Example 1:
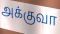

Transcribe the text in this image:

அக்குவா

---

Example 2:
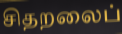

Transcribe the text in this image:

சிதறலைப்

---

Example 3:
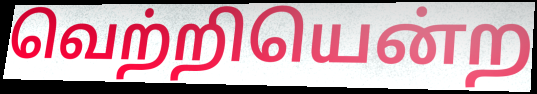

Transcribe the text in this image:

வெற்றியென்ற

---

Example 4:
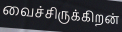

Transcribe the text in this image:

வைச்சிருக்கிறன்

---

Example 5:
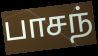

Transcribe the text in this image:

பாசந்